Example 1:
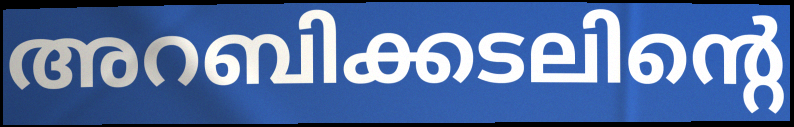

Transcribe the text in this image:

അറബിക്കടലിന്റെ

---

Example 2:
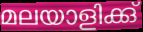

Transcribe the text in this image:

മലയാളിക്കു്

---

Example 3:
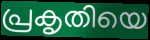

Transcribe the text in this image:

പ്രകൃതിയെ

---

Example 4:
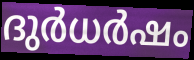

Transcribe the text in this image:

ദുർധർഷം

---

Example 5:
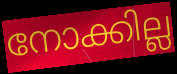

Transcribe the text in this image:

നോക്കില്ല